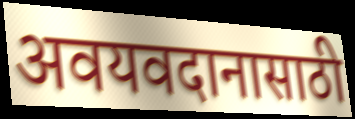
अवयवदानासाठी